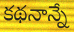
కథనాన్నే